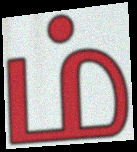
ம்